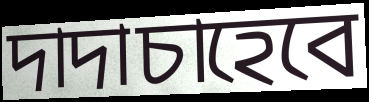
দাদাচাহেবে